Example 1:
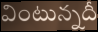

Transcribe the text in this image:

వింటున్నదీ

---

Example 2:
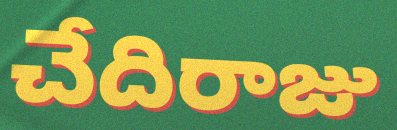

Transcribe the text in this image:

చేదిరాజు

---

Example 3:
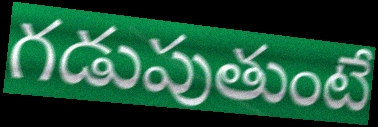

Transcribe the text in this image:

గడుపుతుంటే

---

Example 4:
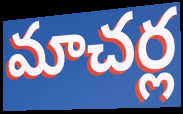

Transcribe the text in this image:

మాచర్ల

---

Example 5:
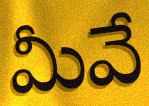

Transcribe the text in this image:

మీవే